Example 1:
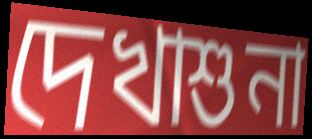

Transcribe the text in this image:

দেখাশুনা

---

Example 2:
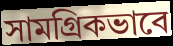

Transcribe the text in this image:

সামগ্ৰিকভাবে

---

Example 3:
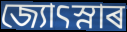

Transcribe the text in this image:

জ্যোৎস্নাৰ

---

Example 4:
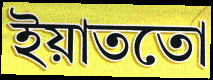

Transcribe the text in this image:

ইয়াততো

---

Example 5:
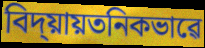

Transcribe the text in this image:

বিদ্য়ায়তনিকভাৱে